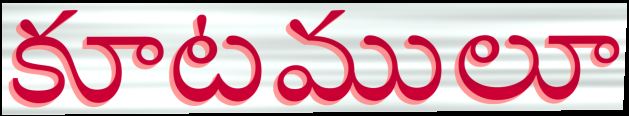
కూటములూ